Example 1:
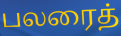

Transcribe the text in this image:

பலரைத்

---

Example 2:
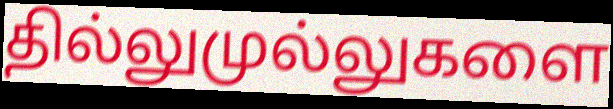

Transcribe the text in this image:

தில்லுமுல்லுகளை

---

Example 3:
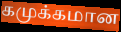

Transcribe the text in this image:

கமுக்கமான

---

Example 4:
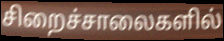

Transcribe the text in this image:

சிறைச்சாலைகளில்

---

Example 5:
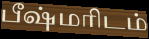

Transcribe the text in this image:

பீஷ்மரிடம்